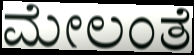
ಮೇಲಂತೆ